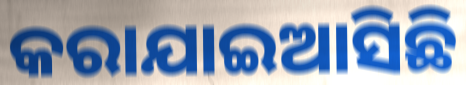
କରାଯାଇଆସିଛି